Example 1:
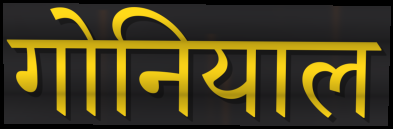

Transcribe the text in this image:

गोनियाल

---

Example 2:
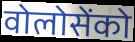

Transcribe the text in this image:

वोलोसेंको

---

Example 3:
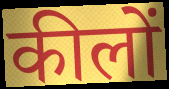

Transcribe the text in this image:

कीलों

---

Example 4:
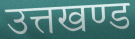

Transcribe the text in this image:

उत्तखण्ड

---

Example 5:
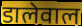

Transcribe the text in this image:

डालेवाल